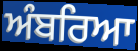
ਅੰਬਰਿਆ